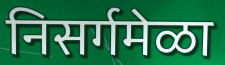
निसर्गमेळा